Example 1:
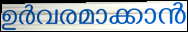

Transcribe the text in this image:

ഉർവരമാക്കാൻ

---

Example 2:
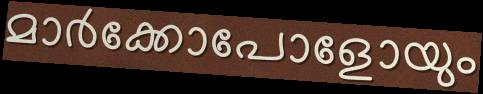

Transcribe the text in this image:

മാർക്കോപോളോയും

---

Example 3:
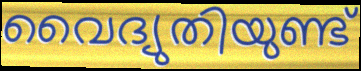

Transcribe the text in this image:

വൈദ്യുതിയുണ്ട്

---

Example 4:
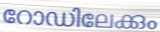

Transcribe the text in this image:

റോഡിലേക്കും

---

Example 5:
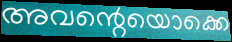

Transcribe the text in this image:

അവന്റെയൊക്കെ